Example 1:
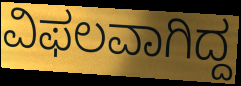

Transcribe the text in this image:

ವಿಫಲವಾಗಿದ್ದ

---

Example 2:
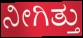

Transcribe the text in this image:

ನೀಗಿತ್ತು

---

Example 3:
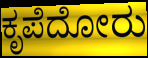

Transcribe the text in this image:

ಕೃಪೆದೋರು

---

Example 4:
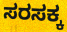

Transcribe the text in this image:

ಸರಸಕ್ಕ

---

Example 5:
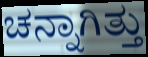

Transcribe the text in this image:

ಚನ್ನಾಗಿತ್ತು